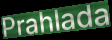
Prahlada